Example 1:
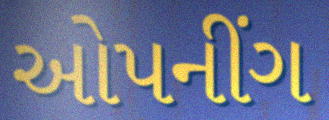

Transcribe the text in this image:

ઓપનીંગ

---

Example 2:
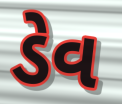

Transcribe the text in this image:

ડેવ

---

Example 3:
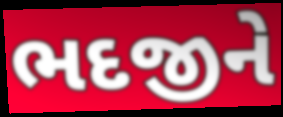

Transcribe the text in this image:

ભદજીને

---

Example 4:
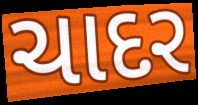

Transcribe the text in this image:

ચાદર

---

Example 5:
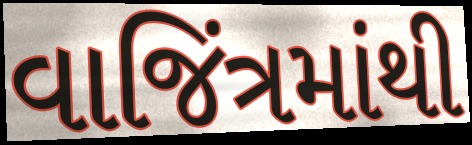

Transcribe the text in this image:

વાજિંત્રમાંથી